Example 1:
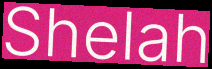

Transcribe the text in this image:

Shelah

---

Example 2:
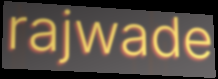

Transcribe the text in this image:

rajwade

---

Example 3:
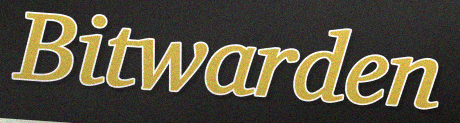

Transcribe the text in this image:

Bitwarden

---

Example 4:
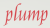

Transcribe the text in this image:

plump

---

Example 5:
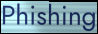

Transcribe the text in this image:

Phishing